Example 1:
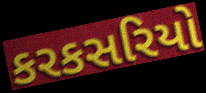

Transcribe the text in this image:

કરકસરિયો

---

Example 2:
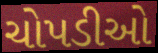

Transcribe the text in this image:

ચોપડીઓ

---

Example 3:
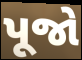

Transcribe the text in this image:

પૂજો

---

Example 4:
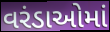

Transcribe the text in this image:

વરંડાઓમાં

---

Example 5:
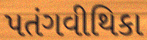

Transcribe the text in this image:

પતંગવીથિકા